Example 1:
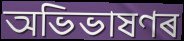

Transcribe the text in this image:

অভিভাষণৰ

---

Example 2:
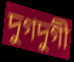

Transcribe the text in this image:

দুগদুগী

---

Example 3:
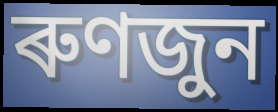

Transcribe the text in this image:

ৰুণজুন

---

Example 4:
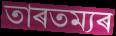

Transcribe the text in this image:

তাৰতম্যৰ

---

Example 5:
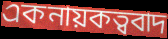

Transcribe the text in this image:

একনায়কত্ববাদ